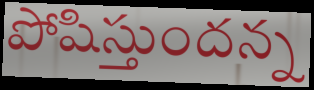
పోషిస్తుందన్న